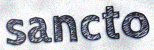
sancto